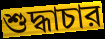
শুদ্ধাচার